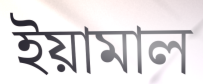
ইয়ামাল